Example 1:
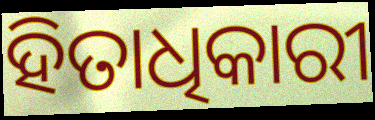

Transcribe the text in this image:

ହିତାଧିକାରୀ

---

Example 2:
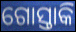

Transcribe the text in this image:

ଗୋସ୍ତାକି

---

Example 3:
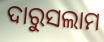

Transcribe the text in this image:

ଦାରୁସଲାମ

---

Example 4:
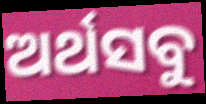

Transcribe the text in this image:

ଅର୍ଥସବୁ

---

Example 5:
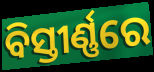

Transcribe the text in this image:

ବିସ୍ତୀର୍ଣ୍ଣରେ